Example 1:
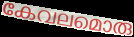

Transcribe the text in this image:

കേവലമൊരു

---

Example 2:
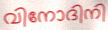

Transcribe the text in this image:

വിനോദിനി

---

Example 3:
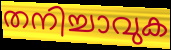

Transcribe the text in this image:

തനിച്ചാവുക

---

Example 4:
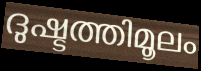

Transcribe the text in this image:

ദുഷ്ടത്തിമൂലം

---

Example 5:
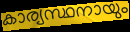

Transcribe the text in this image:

കാര്യസ്ഥനായും